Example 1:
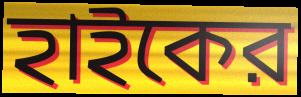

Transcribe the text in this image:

হাইকের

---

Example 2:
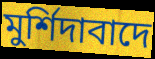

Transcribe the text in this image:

মুর্শিদাবাদে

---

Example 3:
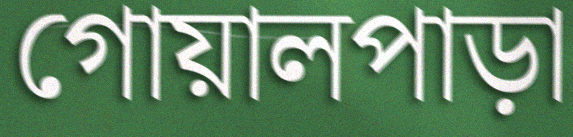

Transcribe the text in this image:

গোয়ালপাড়া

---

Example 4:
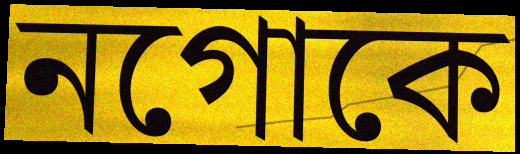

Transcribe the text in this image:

নগোকে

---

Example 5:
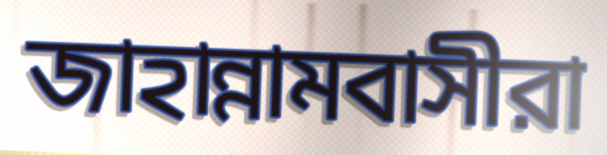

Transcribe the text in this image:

জাহান্নামবাসীরা